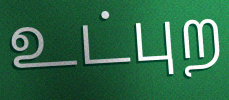
உட்புற